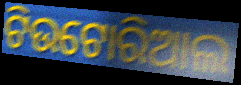
ଟିଉଟୋରିଆଲ